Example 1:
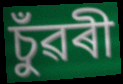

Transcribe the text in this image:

চুঁৱৰী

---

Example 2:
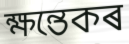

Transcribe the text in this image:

ক্ষন্তেকৰ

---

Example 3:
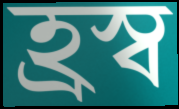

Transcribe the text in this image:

হ্ৰস্ব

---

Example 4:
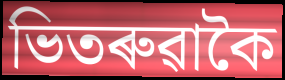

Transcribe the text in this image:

ভিতৰুৱাকৈ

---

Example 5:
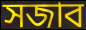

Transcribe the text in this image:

সজাব